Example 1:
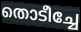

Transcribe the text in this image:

തൊടീച്ചേ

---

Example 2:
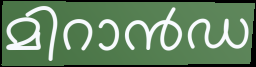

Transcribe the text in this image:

മിറാൻഡ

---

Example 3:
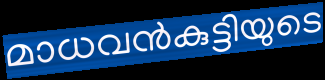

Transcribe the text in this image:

മാധവൻകുട്ടിയുടെ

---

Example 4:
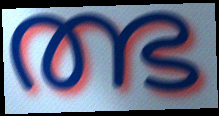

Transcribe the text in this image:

ത്ഭ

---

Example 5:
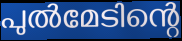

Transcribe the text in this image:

പുൽമേടിന്റെ